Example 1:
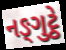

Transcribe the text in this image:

નઙ્ગુટ્ઠે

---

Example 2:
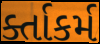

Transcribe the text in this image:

ર્ક્તાકર્મ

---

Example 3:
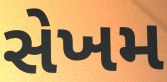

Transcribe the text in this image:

સેખમ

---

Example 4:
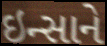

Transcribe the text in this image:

ઇન્સાને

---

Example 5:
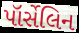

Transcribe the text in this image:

પૉર્સેલિન